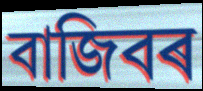
বাজিবৰ